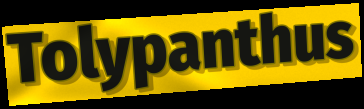
Tolypanthus